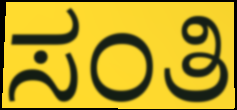
ಸಂತಿ